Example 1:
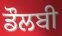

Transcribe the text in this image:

ਡੌਲਬੀ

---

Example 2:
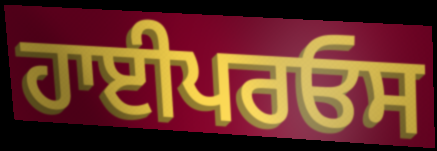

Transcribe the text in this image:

ਹਾਈਪਰਓਸ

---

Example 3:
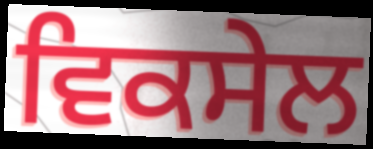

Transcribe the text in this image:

ਵਿਕਸੇਲ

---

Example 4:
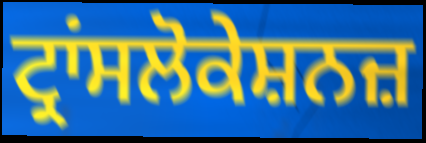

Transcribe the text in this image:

ਟ੍ਰਾਂਸਲੋਕੇਸ਼ਨਜ਼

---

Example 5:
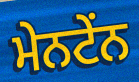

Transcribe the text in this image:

ਮੇਨਟੇਂਨ